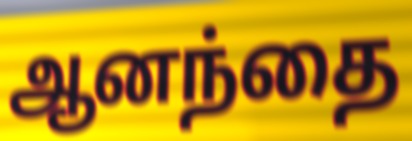
ஆனந்தை